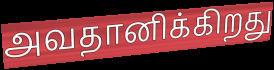
அவதானிக்கிறது